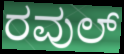
ರವುಲ್